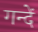
गन्दें